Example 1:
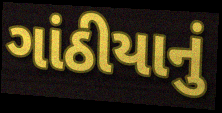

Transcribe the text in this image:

ગાંઠીયાનું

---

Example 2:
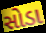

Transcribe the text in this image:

સોડા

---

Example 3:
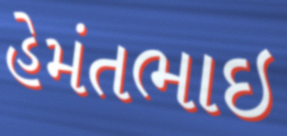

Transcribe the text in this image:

હેમંતભાઇ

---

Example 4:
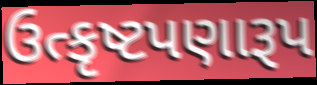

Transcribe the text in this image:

ઉત્કૃષ્ટપણારૂપ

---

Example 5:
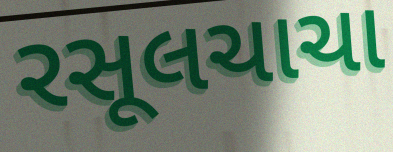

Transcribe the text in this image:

રસૂલચાચા